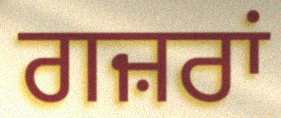
ਗਜ਼ਰਾਂ